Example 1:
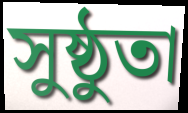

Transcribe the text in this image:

সুষ্ঠুতা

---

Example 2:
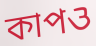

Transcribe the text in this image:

কাপও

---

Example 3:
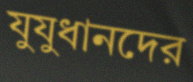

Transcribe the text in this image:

যুযুধানদের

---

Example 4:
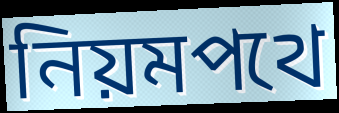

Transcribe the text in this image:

নিয়মপথে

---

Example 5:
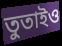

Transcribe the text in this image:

তুতাইও